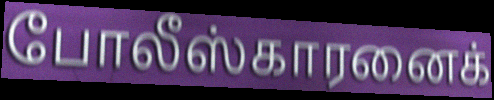
போலீஸ்காரனைக்